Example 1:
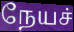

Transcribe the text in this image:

நேயச்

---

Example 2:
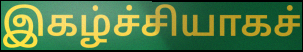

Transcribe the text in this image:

இகழ்ச்சியாகச்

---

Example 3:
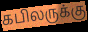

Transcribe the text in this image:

கபிலருக்கு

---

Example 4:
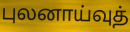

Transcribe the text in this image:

புலனாய்வுத்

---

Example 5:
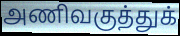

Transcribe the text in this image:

அணிவகுத்துக்